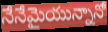
నేనేమైయున్నానో